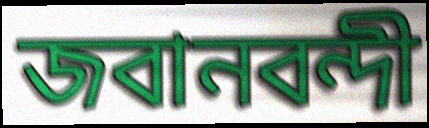
জবানবন্দী